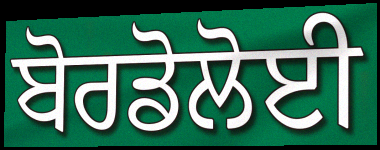
ਬੋਰਡੋਲੋਈ